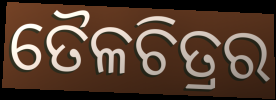
ତୈଳଚିତ୍ରର